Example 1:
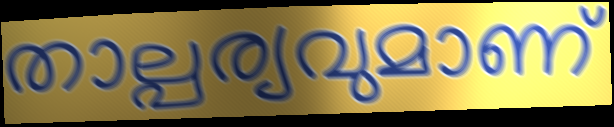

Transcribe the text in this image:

താല്പര്യവുമാണ്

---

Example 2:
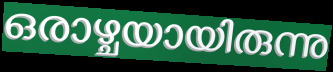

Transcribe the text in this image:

ഒരാഴ്ചയായിരുന്നു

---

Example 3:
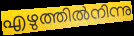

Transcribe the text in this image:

എഴുത്തിൽനിന്നു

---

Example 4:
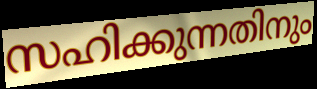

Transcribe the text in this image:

സഹിക്കുന്നതിനും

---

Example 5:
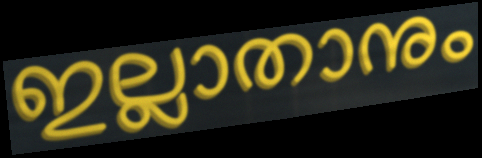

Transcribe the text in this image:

ഇല്ലാതാനും